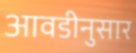
आवडीनुसार